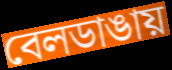
বেলডাঙায়